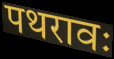
पथरावः